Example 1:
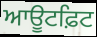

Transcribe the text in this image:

ਆਊਟਫ਼ਿਟ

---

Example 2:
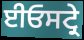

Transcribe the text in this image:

ਈਓਸਟ੍ਰੇ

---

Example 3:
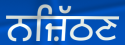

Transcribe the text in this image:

ਨਜ਼ਿੱਠਣ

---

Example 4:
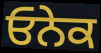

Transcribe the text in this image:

ਓਨੇਕ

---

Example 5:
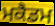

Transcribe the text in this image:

ਮਕੈਡਮ